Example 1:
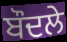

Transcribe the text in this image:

ਬੌਦਲੇ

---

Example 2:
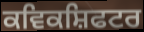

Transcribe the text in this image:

ਕਵਿਕਸ਼ਿਫਟਰ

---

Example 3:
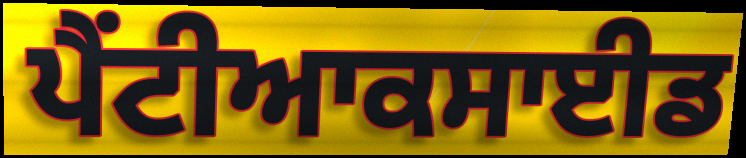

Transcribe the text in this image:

ਪੈਂਟੀਆਕਸਾਈਡ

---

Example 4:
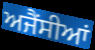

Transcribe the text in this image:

ਅਜੈਂਸੀਆਂ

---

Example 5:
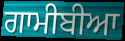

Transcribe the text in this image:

ਗਾਮੀਬੀਆ